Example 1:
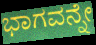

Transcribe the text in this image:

ಭಾಗವನ್ನೇ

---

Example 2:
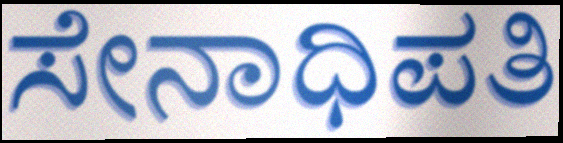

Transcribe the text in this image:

ಸೇನಾಧಿಪತಿ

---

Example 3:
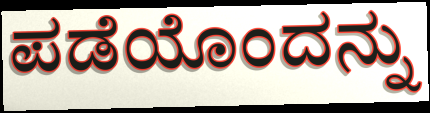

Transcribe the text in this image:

ಪಡೆಯೊಂದನ್ನು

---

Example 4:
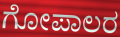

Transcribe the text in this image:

ಗೋಪಾಲರ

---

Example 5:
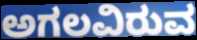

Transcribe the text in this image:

ಅಗಲವಿರುವ